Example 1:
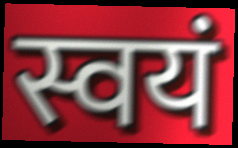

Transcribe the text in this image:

स्वयं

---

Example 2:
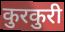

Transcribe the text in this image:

कुरकुरी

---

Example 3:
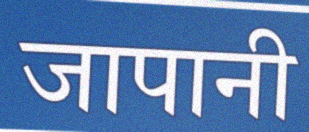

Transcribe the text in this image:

जापानी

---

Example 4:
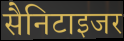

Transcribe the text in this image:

सैनिटाइजर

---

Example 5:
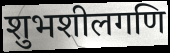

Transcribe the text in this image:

शुभशीलगणि